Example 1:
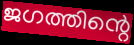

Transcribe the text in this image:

ജഗത്തിന്റെ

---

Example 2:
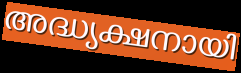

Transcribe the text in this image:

അദ്ധ്യക്ഷനായി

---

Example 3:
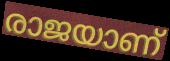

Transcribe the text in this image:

രാജയാണ്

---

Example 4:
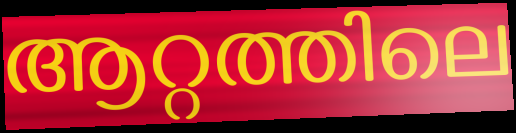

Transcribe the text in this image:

ആറ്റത്തിലെ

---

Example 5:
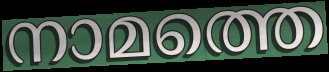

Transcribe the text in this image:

നാമത്തെ